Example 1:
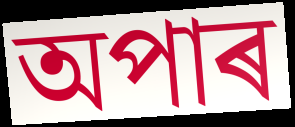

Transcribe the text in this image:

অপাৰ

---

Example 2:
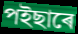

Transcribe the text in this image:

পইছাৰে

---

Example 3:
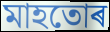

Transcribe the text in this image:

মাহতোৰ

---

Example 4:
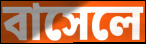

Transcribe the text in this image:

বাসেলে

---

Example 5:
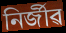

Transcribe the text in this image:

নিৰ্জীৱ